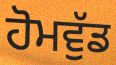
ਹੋਮਵੁੱਡ